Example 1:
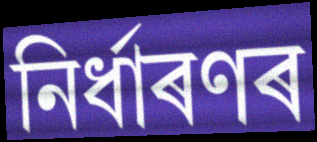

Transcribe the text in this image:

নিৰ্ধাৰণৰ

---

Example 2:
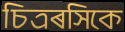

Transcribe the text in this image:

চিত্ৰৰসিকে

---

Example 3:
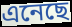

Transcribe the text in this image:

এনেছে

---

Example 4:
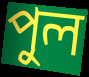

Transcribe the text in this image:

পুল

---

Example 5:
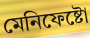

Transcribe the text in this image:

মেনিফেষ্টো